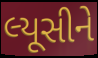
લ્યૂસીને